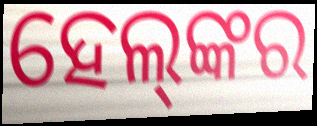
ହେଲ୍‌ଙ୍କର